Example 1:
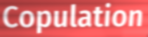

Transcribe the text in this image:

Copulation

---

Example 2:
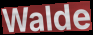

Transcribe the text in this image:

Walde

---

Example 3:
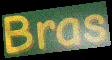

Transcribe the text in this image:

Bras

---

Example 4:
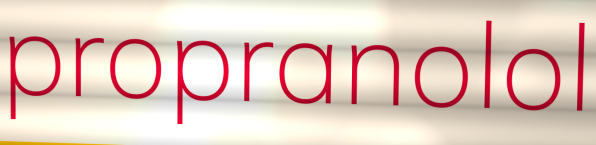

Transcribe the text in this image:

propranolol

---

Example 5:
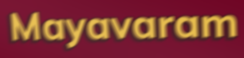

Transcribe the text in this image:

Mayavaram